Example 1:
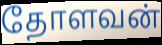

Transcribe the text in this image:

தோளவன்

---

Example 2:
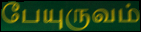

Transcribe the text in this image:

பேயுருவம்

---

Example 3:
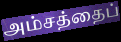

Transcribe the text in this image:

அம்சத்தைப்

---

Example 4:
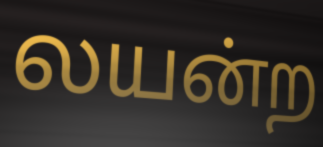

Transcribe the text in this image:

லயன்ற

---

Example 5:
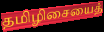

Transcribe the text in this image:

தமிழிசையைத்